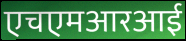
एचएमआरआई